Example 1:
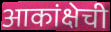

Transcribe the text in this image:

आकांक्षेची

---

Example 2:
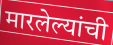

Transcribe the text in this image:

मारलेल्यांची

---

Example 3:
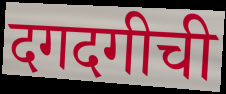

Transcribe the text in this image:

दगदगीची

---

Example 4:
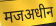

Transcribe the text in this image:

मजअधीन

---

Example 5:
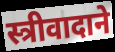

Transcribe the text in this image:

स्त्रीवादाने